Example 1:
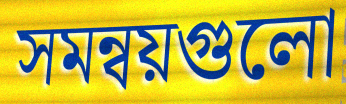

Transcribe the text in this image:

সমন্বয়গুলো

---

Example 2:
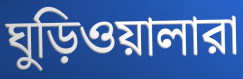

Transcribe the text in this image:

ঘুড়িওয়ালারা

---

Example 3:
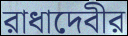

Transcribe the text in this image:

রাধাদেবীর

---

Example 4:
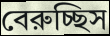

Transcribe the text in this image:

বেরুচ্ছিস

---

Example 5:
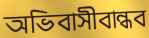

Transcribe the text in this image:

অভিবাসীবান্ধব